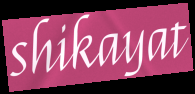
shikayat